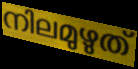
നിലമുഴുത്